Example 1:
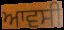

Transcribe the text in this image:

ਆਵਸੀ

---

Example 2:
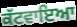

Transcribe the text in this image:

ਕੱਟਵਾਇਆ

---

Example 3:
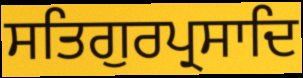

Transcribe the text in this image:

ਸਤਿਗੁਰਪ੍ਰਸਾਦਿ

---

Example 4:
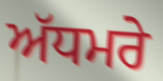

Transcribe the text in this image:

ਅੱਧਮਰੇ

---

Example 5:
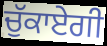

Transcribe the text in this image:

ਚੁੱਕਾਏਗੀ